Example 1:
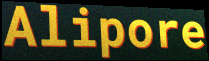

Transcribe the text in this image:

Alipore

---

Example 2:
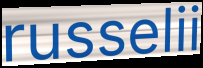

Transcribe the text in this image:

russelii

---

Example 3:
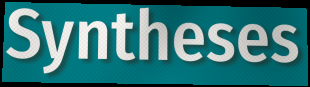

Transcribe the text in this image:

Syntheses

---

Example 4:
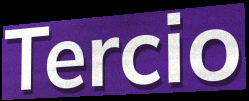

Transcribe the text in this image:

Tercio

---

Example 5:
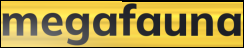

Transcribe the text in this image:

megafauna